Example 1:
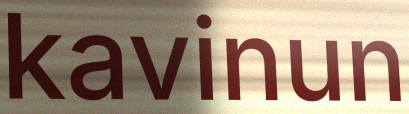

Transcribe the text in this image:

kavinun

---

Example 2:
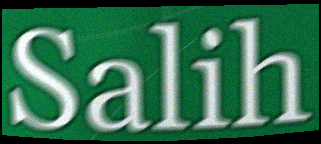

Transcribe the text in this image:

Salih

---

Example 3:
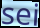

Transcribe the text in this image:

sei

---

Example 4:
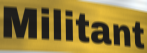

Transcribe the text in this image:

Militant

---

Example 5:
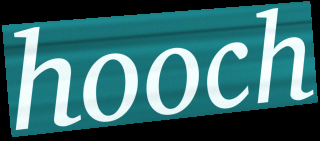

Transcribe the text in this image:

hooch